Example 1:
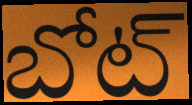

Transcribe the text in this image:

బోట్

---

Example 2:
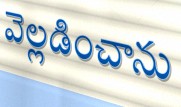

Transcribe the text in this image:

వెల్లడించాను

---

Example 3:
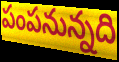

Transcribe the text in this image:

పంపనున్నది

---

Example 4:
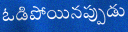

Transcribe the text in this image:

ఓడిపోయినప్పుడు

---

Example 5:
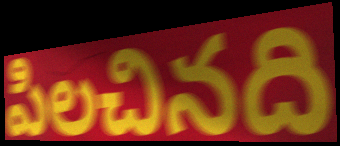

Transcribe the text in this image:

పిలచినది